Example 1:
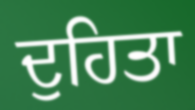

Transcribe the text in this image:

ਦੁਹਿਤਾ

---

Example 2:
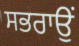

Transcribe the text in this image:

ਸਭਰਾਉਂ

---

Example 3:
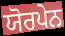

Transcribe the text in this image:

ਯੋਰਪੇਨ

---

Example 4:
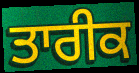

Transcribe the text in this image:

ਤਾਰੀਕ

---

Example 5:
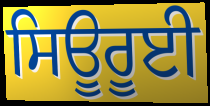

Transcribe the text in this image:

ਸਿਊਰੂਈ